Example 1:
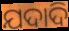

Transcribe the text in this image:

ଯଦାଦି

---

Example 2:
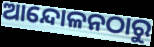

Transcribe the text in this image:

ଆନ୍ଦୋଳନଠାରୁ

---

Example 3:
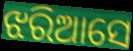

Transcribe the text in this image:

ଝରିଆସେ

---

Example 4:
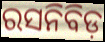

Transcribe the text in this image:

ରସନିବିଡ଼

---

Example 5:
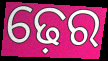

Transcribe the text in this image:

ଢ଼େର